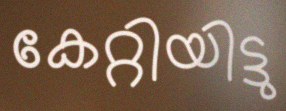
കേറ്റിയിട്ടു